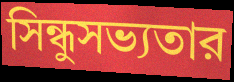
সিন্ধুসভ্যতার